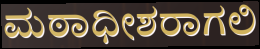
ಮಠಾಧೀಶರಾಗಲಿ